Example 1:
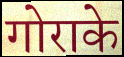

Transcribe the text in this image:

गोराके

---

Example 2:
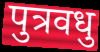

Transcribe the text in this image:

पुत्रवधु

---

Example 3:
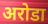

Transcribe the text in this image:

अरोडा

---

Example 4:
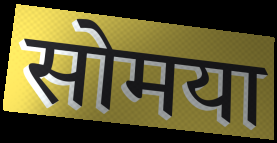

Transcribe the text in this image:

सोमया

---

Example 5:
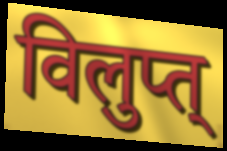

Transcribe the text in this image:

विलुप्त्